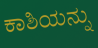
ಕಾಶಿಯನ್ನು